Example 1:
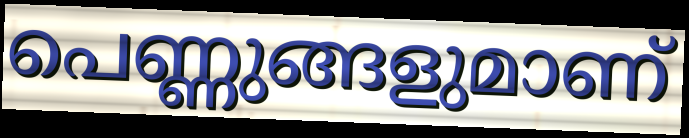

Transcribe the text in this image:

പെണ്ണുങ്ങളുമാണ്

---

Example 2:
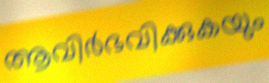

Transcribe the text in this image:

ആവിർഭവിക്കുകയും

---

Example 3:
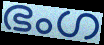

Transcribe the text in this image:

ഭംഗ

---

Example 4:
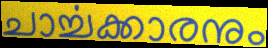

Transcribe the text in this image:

ചാൎച്ചക്കാരനും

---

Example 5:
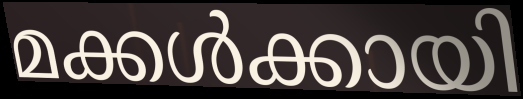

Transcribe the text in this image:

മക്കൾക്കായി